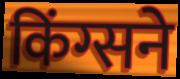
किंग्सने